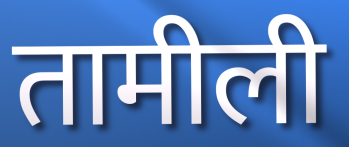
तामीली